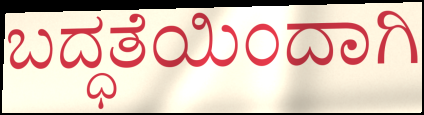
ಬದ್ಧತೆಯಿಂದಾಗಿ